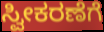
ಸ್ವೀಕರಣೆಗೆ